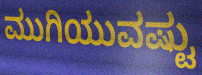
ಮುಗಿಯುವಷ್ಟು